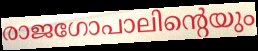
രാജഗോപാലിന്റെയും